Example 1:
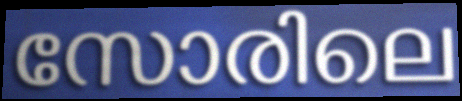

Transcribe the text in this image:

സോരിലെ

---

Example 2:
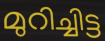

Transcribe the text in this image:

മുറിച്ചിട്ട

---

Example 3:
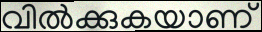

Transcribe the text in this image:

വിൽക്കുകയാണ്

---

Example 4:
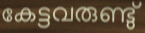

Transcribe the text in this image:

കേട്ടവരുണ്ടു്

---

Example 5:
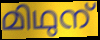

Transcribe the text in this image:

മിഥുന്